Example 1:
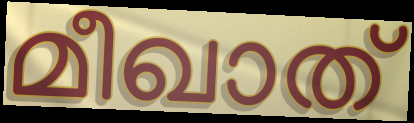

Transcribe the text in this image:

മീഖാത്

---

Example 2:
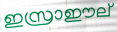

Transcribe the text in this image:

ഇസ്രാഈല്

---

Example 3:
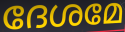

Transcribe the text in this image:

ദേശമേ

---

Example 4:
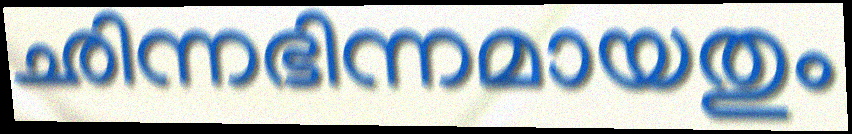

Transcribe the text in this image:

ഛിന്നഭിന്നമായതും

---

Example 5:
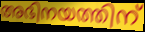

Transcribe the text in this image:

അഭിനയത്തിന്